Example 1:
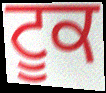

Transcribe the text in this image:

ਟੂਕ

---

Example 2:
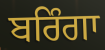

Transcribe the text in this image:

ਬਰਿੰਗਾ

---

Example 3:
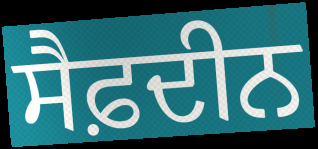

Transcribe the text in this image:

ਸੈਫ਼ਦੀਨ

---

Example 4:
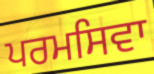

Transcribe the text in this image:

ਪਰਮਸਿਵਾ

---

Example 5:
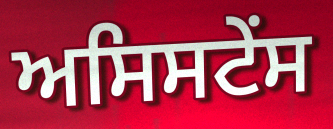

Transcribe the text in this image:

ਅਸਿਸਟੇਂਸ